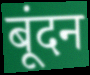
बूंदन